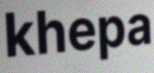
khepa